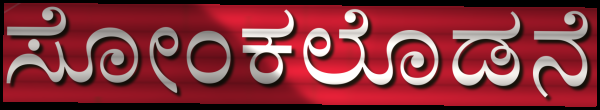
ಸೋಂಕಲೊಡನೆ